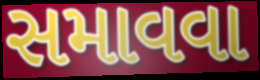
સમાવવા